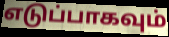
எடுப்பாகவும்